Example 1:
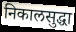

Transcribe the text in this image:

निकालसुद्धा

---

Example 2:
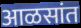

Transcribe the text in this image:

आळसांत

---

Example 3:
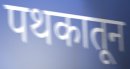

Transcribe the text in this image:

पथकातून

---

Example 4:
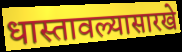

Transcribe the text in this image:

धास्तावल्यासारखे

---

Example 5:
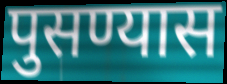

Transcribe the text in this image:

पुसण्यास